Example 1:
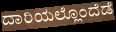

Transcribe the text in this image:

ದಾರಿಯಲ್ಲೊಂದೆಡೆ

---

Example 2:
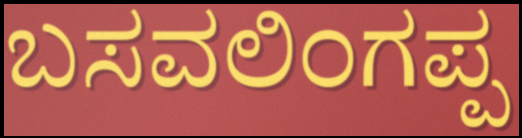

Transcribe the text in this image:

ಬಸವಲಿಂಗಪ್ಪ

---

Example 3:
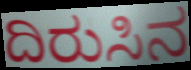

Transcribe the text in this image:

ದಿರುಸಿನ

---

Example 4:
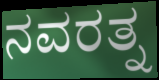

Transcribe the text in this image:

ನವರತ್ನ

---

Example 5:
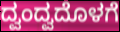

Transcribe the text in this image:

ದ್ವಂದ್ವದೊಳಗೆ